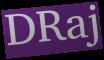
DRaj